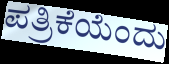
ಪತ್ರಿಕೆಯೆಂದು